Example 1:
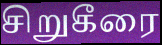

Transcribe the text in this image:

சிறுகீரை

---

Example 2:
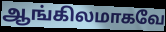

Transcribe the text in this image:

ஆங்கிலமாகவே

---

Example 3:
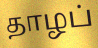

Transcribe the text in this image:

தாழப்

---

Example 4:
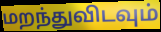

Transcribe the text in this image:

மறந்துவிடவும்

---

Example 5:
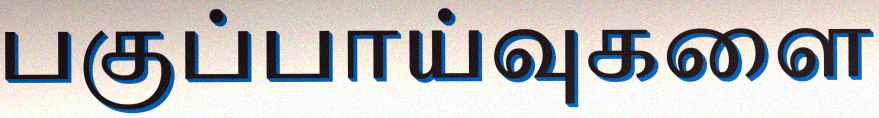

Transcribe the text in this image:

பகுப்பாய்வுகளை